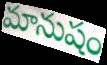
మానుషం